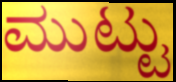
ಮುಟ್ಟು